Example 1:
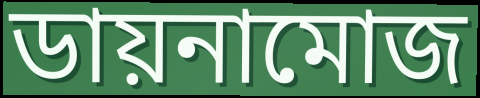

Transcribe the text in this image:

ডায়নামোজ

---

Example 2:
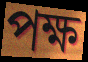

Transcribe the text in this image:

পক্ষ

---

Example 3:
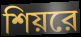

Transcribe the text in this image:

শিয়রে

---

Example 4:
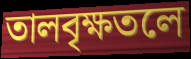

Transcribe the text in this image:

তালবৃক্ষতলে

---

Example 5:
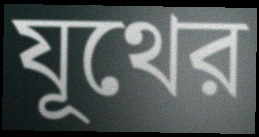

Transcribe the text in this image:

যূথের